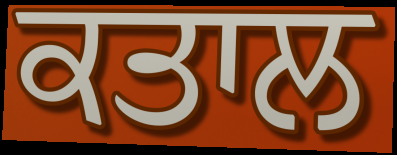
ਕਤਾਲ